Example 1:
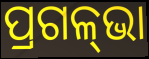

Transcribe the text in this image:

ପ୍ରଗଳ୍‌ଭା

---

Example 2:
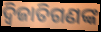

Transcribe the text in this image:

ଦ୍ୱିଜାତିଗଣଙ୍କ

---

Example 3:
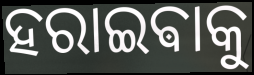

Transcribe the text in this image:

ହରାଇଵାକୁ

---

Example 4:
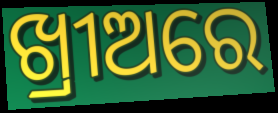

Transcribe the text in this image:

ଖ୍ରୀଅରେ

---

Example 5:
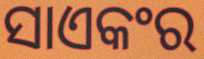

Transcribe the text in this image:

ସାଏକଂର